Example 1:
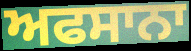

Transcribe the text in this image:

ਅਫਸਾਨਾ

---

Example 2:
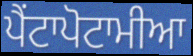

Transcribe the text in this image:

ਪੈਂਟਾਪੋਟਾਮੀਆ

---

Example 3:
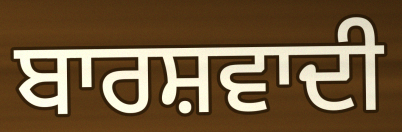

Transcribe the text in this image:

ਬਾਰਸ਼ਵਾਦੀ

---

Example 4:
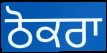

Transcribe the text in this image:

ਠੋਕਰਾ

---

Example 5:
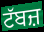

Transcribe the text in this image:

ਟੱਬਜ਼